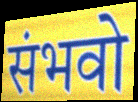
संभवो